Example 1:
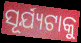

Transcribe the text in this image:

ସୂର୍ଯ୍ୟଟାକୁ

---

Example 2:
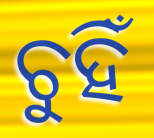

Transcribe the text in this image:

ଚୁହିଁ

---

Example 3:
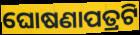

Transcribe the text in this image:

ଘୋଷଣାପତ୍ରଟି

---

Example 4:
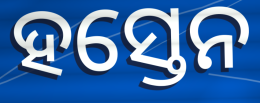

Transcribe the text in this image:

ହସ୍ତେନ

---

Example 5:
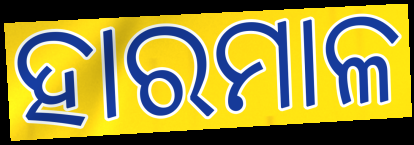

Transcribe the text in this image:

ହାରମାଳ